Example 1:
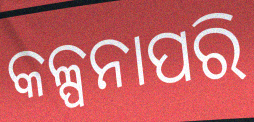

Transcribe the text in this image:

କଳ୍ପନାପରି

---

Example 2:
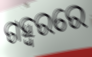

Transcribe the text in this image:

ଗହ୍ୱରରେ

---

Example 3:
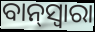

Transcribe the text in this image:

ବାନ୍‌ସ୍ୱାରା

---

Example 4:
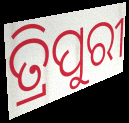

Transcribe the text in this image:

ତ୍ରିପୁରୀ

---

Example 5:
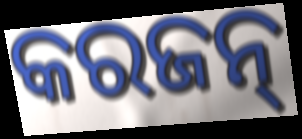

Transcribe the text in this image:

କରଜନ୍